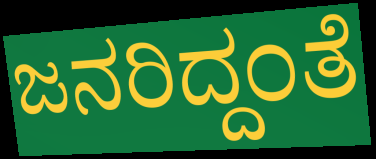
ಜನರಿದ್ದಂತೆ